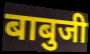
बाबुजी